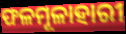
ଫଳମୂଳାହାରୀ